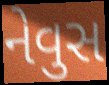
નેવુસ